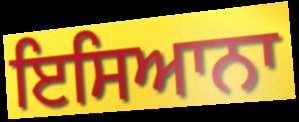
ਇਸਿਆਨਾ